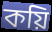
কয়ি